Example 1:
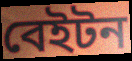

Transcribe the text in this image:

বেইটন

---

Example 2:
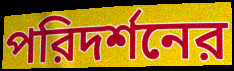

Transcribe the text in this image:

পরিদর্শনের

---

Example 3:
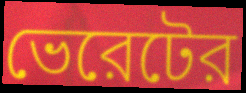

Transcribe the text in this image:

ভেরেটের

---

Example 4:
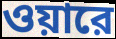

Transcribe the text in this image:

ওয়ারে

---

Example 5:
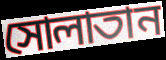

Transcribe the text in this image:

সোলাতান